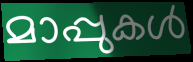
മാപ്പുകൾ